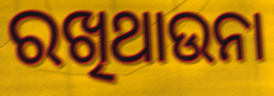
ରଖିଥାଉନା